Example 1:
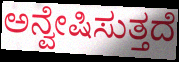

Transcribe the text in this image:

ಅನ್ವೇಷಿಸುತ್ತದೆ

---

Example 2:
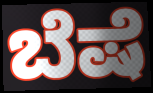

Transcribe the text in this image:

ಬೆಷೆ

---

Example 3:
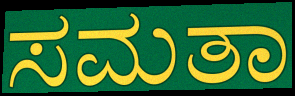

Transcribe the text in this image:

ಸಮತಾ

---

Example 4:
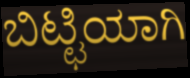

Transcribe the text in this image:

ಬಿಟ್ಟಿಯಾಗಿ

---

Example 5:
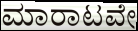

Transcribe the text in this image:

ಮಾರಾಟವೇ